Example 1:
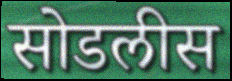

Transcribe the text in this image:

सोडलीस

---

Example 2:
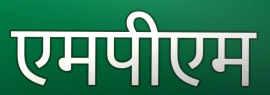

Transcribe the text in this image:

एमपीएम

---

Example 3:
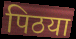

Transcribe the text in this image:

पिठया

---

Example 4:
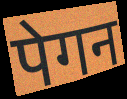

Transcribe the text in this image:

पेगन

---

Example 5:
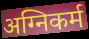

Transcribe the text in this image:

अग्निकर्म